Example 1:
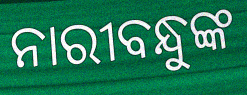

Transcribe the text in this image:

ନାରୀବନ୍ଧୁଙ୍କ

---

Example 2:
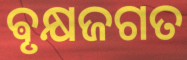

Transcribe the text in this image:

ଵୃକ୍ଷଜଗତ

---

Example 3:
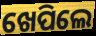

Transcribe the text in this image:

ଖେପିଲେ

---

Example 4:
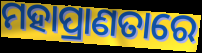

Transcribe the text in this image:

ମହାପ୍ରାଣତାରେ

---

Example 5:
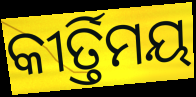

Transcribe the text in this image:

କୀର୍ତ୍ତିମୟ